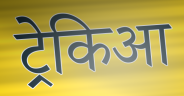
ट्रेकिआ